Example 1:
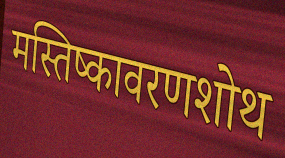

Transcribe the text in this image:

मस्तिष्कावरणशोथ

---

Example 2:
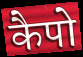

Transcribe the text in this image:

कैपो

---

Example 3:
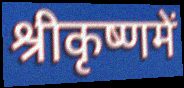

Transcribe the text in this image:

श्रीकृष्णमें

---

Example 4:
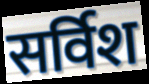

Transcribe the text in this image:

सर्विश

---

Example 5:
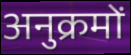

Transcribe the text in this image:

अनुक्रमों